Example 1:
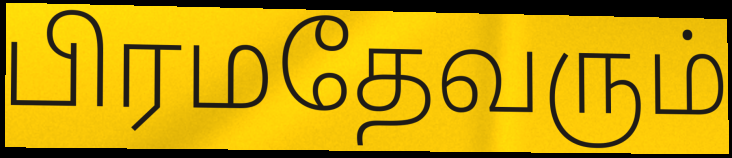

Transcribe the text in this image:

பிரமதேவரும்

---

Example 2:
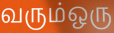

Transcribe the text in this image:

வரும்ஒரு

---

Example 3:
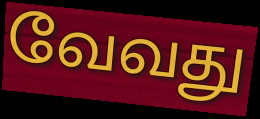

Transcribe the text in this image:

வேவது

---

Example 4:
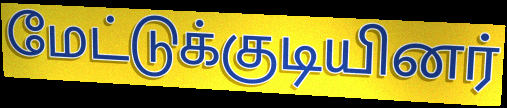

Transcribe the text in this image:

மேட்டுக்குடியினர்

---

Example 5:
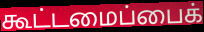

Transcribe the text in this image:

கூட்டமைப்பைக்